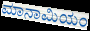
ಮಾನಾಮಿಯಂ